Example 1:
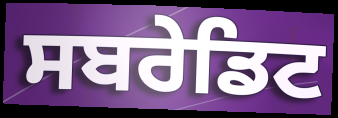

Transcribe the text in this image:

ਸਬਰੇਡਿਟ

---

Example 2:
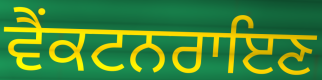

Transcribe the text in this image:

ਵੈਂਕਟਨਰਾਇਣ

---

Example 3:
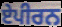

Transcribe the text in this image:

ਏਪੀਰਨ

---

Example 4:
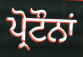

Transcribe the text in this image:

ਪ੍ਰੋਟੌਨਾਂ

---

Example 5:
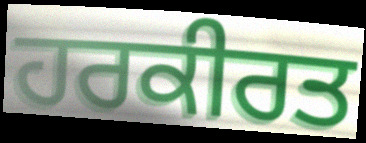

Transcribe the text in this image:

ਹਰਕੀਰਤ